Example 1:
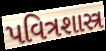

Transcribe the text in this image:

પવિત્રશાસ્ત્ર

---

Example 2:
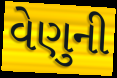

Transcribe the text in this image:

વેણુની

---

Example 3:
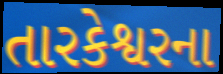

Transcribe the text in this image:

તારકેશ્વરના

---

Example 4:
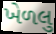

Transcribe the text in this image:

ખેળલુ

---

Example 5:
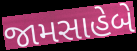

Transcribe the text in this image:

જામસાહેબે